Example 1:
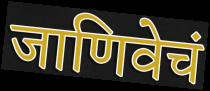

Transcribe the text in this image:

जाणिवेचं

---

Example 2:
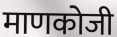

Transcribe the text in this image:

माणकोजी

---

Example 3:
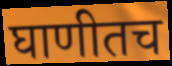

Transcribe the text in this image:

घाणीतच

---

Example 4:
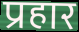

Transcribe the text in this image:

प्रहार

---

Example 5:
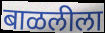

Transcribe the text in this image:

बाळलीला